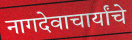
नागदेवाचार्यांचे